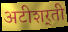
अटीशर्ती